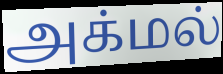
அக்மல்